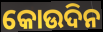
କୋଉଦିନ